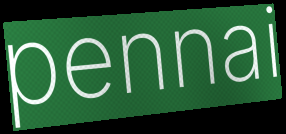
pennai